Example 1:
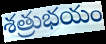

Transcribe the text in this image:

శత్రుభయం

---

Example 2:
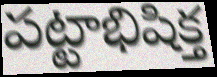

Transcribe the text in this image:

పట్టాభిషిక్త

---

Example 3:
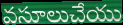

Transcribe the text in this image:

వసూలుచేయు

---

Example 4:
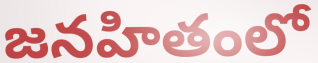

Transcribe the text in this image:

జనహితంలో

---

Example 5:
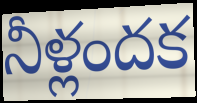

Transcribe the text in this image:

నీళ్లందక